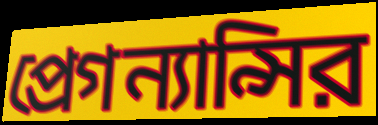
প্রেগন্যান্সির